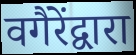
वगैरेंद्वारा